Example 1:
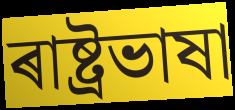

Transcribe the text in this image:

ৰাষ্ট্ৰভাষা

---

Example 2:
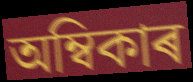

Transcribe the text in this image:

অম্বিকাৰ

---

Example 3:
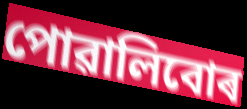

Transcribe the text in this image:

পোৱালিবোৰ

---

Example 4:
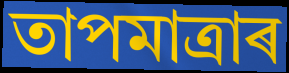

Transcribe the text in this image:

তাপমাত্ৰাৰ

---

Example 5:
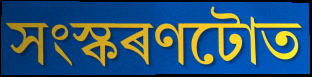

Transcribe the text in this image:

সংস্কৰণটোত